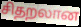
சிதறலான